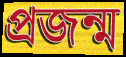
প্রজন্ম